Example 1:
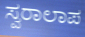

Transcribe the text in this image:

ಸ್ವರಾಲಾಪ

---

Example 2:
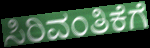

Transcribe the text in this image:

ಸಿರಿವಂತಿಕೆಗೆ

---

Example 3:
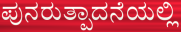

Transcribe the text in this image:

ಪುನರುತ್ಪಾದನೆಯಲ್ಲಿ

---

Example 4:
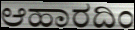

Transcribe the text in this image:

ಆಹಾರದಿಂ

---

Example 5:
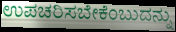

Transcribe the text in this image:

ಉಪಚರಿಸಬೇಕೆಂಬುದನ್ನು